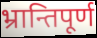
भ्रान्तिपूर्ण